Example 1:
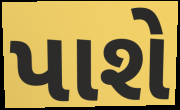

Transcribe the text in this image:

પાશે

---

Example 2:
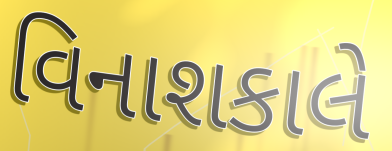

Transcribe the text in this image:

વિનાશકાલે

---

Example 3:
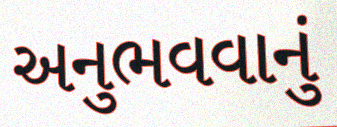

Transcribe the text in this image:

અનુભવવાનું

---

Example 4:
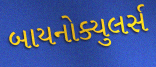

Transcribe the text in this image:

બાયનોક્યુલર્સ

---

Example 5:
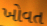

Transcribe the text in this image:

ખોવત